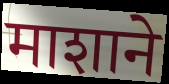
माशाने